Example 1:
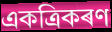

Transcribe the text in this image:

একত্ৰিকৰণ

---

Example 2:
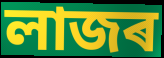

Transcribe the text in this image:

লাজৰ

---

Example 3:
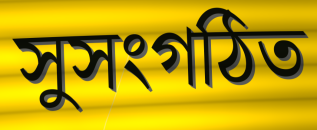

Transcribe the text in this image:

সুসংগঠিত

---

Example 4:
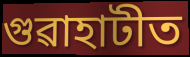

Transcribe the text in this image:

গুৱাহাটীত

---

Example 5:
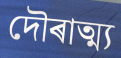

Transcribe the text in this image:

দৌৰাত্ম্য